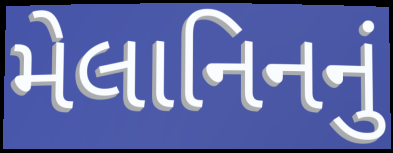
મેલાનિનનું